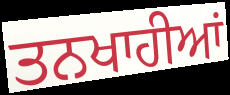
ਤਨਖਾਹੀਆਂ